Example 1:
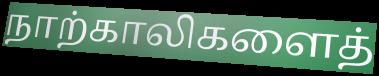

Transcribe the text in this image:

நாற்காலிகளைத்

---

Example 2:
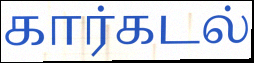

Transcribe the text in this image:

கார்கடல்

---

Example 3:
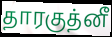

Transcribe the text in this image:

தாரகுத்னீ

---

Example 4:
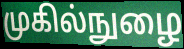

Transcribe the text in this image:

முகில்நுழை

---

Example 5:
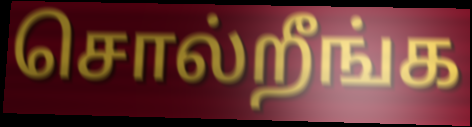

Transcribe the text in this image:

சொல்றீங்க